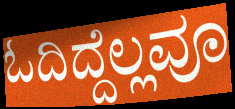
ಓದಿದ್ದೆಲ್ಲವೂ